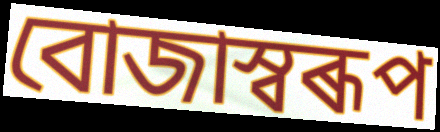
বোজাস্বৰূপ